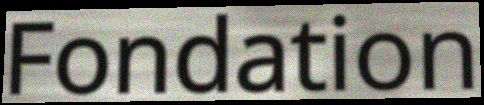
Fondation